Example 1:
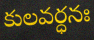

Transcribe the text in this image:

కులవర్ధనః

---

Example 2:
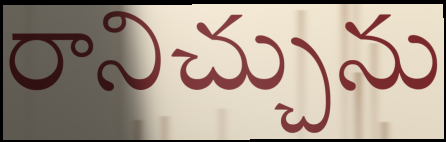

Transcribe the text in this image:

రానిచ్చును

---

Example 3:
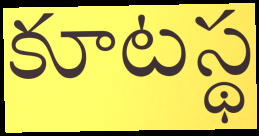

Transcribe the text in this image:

కూటస్థ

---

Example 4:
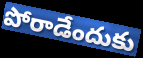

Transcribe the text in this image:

పోరాడేందుకు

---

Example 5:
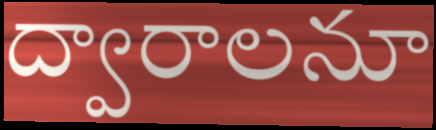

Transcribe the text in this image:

ద్వారాలనూ